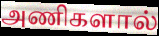
அணிகளால்